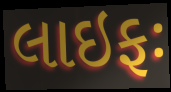
લાઇફઃ